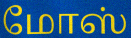
மோஸ்